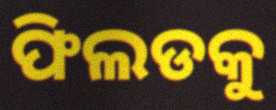
ଫିଲଡକୁ